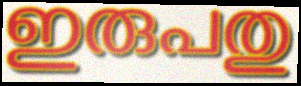
ഇരുപതു